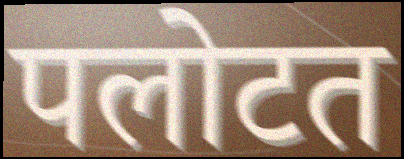
पलोटत